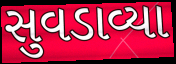
સુવડાવ્યા